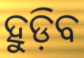
ହୁଡ଼ିବ